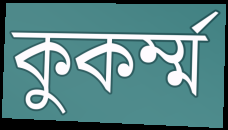
কুকর্ম্ম